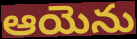
ఆయెను